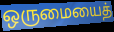
ஒருமையைத்